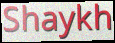
Shaykh